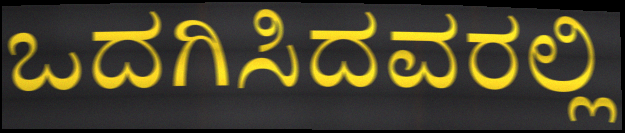
ಒದಗಿಸಿದವರಲ್ಲಿ